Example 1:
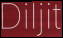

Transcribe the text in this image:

Diljit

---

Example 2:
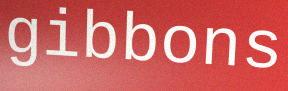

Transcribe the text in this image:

gibbons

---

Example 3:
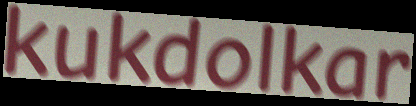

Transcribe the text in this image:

kukdolkar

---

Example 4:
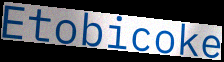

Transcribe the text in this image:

Etobicoke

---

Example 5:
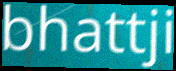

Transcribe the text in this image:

bhattji